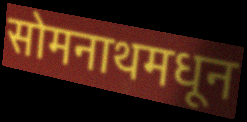
सोमनाथमधून